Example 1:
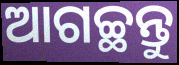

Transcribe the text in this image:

ଆଗଚ୍ଛନ୍ତୁ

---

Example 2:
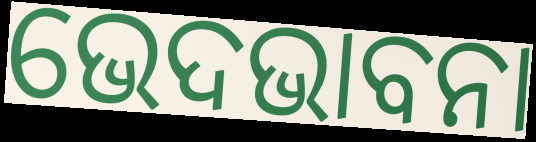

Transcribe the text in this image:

ଭେଦଭାବନା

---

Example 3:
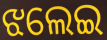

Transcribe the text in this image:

ଝଲେଇ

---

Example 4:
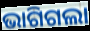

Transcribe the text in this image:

ଭାଗିଗଲା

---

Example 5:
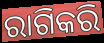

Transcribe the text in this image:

ରାଗିକରି